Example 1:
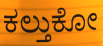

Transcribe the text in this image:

ಕಲ್ತುಕೋ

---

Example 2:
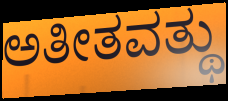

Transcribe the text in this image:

ಅತೀತವತ್ಥು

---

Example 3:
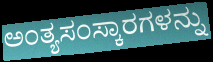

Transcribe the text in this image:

ಅಂತ್ಯಸಂಸ್ಕಾರಗಳನ್ನು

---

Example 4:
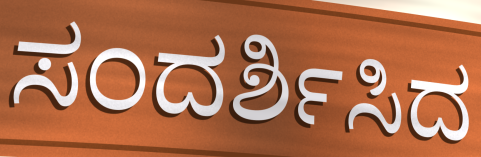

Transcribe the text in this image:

ಸಂದರ್ಶಿಸಿದ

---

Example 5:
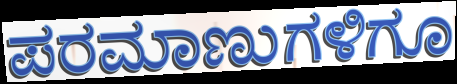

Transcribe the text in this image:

ಪರಮಾಣುಗಳಿಗೂ